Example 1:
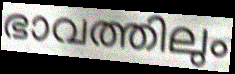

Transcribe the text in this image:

ഭാവത്തിലും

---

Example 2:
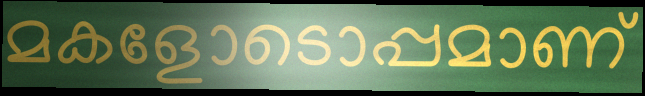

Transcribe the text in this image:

മകളോടൊപ്പമാണ്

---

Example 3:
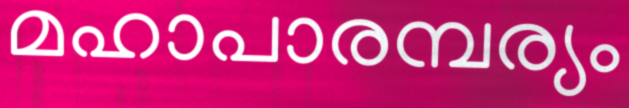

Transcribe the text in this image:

മഹാപാരമ്പര്യം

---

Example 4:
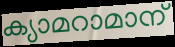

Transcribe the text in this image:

ക്യാമറാമാന്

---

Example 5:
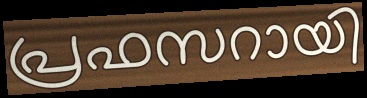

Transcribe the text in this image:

പ്രഫസറായി